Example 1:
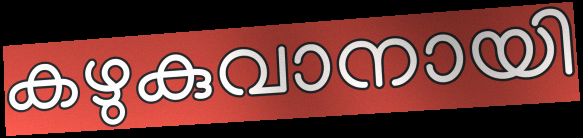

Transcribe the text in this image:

കഴുകുവാനായി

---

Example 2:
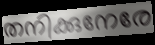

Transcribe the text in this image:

തനിക്കുനേരേ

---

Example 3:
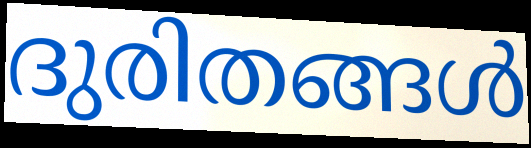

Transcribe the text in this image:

ദുരിതങ്ങൾ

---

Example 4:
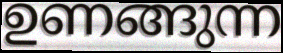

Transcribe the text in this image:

ഉണങ്ങുന്ന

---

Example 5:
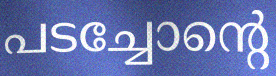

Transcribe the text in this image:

പടച്ചോന്റെ